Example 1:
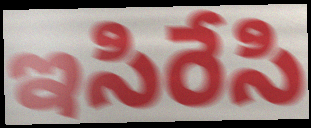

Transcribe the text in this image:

ఇసిరేసి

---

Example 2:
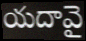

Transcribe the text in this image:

యదావై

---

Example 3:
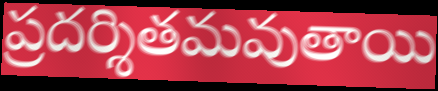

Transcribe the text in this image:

ప్రదర్శితమవుతాయి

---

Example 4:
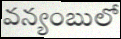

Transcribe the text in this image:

వన్యంబులో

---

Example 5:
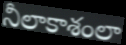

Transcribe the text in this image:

నీలాకాశంలా